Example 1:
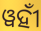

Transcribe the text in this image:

ୱହୀଁ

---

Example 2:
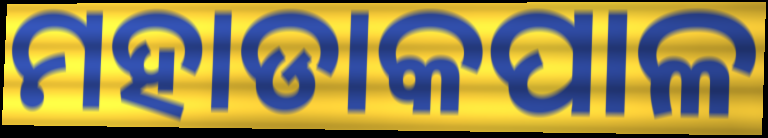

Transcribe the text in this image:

ମହାଡାକପାଳ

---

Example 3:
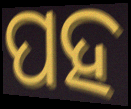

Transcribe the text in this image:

ପହ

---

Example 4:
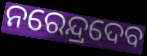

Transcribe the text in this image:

ନରେନ୍ଦ୍ରଦେବ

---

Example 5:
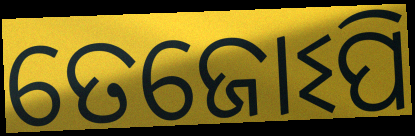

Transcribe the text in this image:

ତେଜୋଽପି